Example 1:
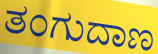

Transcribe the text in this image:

ತಂಗುದಾಣ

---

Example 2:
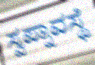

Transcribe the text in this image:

ಸ್ವಪ್ನಾವಸ್ಥೆ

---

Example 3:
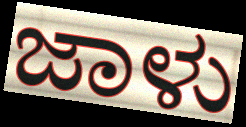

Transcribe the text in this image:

ಜಾಳು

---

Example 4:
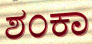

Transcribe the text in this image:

ಶಂಕಾ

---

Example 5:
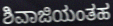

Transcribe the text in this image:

ಶಿವಾಜಿಯಂತಹ